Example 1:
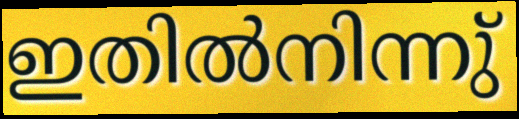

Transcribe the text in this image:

ഇതിൽനിന്നു്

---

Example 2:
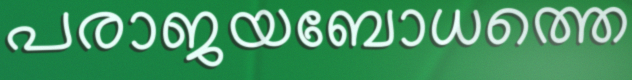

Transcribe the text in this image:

പരാജയബോധത്തെ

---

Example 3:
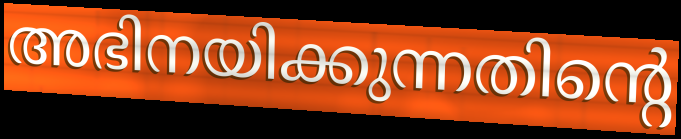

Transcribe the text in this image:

അഭിനയിക്കുന്നതിന്റെ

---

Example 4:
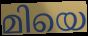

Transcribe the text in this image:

മിയെ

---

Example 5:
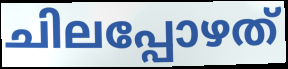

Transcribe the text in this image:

ചിലപ്പോഴത്